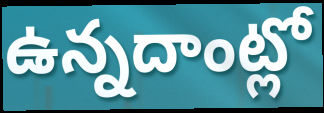
ఉన్నదాంట్లో